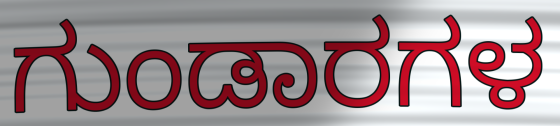
ಗುಂಡಾರಗಳ